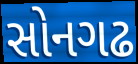
સોનગઢ